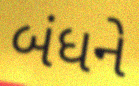
બંધને